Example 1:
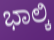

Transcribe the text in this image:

ಭಾಲ್ಕಿ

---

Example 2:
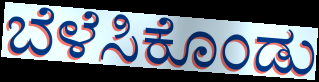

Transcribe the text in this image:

ಬೆಳೆಸಿಕೊಂಡು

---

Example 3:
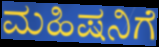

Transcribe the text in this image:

ಮಹಿಷನಿಗೆ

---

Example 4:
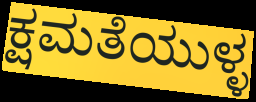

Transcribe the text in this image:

ಕ್ಷಮತೆಯುಳ್ಳ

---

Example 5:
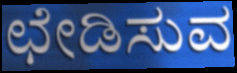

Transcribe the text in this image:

ಛೇಡಿಸುವ